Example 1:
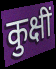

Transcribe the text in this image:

कुक्षीं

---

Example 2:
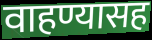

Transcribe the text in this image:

वाहण्यासह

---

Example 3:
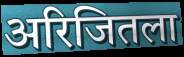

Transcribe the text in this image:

अरिजितला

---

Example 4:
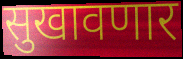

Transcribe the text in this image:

सुखावणार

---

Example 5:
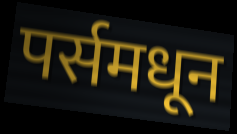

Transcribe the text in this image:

पर्समधून